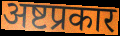
अष्टप्रकार